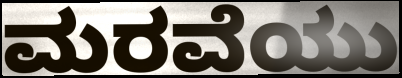
ಮರವೆಯು